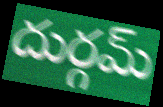
దుర్గమ్